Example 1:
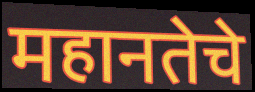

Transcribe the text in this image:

महानतेचे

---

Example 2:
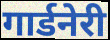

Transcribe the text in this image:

गार्डनेरी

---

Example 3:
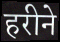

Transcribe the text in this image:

हरीने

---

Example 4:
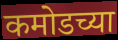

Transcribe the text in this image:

कमोडच्या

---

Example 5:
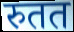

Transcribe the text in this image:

रुतत